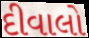
દીવાલો